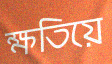
ক্ষতিয়ে